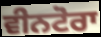
ਵੀਨਟੋਰਾ